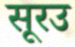
सूरउ